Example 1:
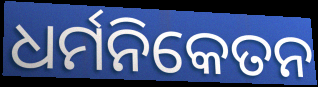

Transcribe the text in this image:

ଧର୍ମନିକେତନ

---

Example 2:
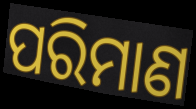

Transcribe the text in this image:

ପରିମାଣ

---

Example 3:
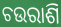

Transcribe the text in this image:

ଚଉରାଶି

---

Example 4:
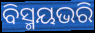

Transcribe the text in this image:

ବିସ୍ମୟଭରି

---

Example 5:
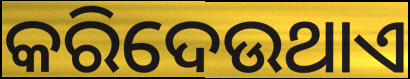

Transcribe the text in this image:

କରିଦେଉଥାଏ